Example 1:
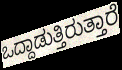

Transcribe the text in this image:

ಒದ್ದಾಡುತ್ತಿರುತ್ತಾರೆ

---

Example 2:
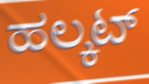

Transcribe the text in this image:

ಹಲ್ಕಟ್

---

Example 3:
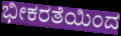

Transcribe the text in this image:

ಭೀಕರತೆಯಿಂದ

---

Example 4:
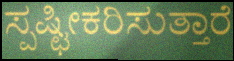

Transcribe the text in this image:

ಸ್ಪಷ್ಟೀಕರಿಸುತ್ತಾರೆ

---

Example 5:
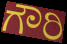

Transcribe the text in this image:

ಗೌರಿ